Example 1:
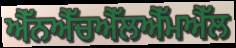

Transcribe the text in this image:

ਐੱਨਐੱਚਐੱਲਐੱਮਐੱਲ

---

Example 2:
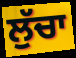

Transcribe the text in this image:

ਲੁੱਚਾ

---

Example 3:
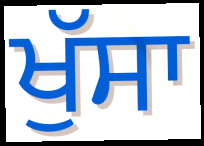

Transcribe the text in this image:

ਖੁੱਸਾ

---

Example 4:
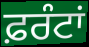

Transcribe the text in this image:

ਫ਼ਰੰਟਾਂ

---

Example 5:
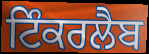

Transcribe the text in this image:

ਟਿੰਕਰਲੈਬ